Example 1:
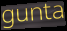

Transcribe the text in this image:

gunta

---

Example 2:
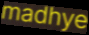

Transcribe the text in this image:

madhye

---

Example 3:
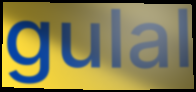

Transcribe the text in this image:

gulal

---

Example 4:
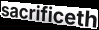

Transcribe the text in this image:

sacrificeth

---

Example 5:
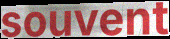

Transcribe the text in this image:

souvent